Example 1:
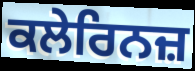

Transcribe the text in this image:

ਕਲੇਰਿਨਜ਼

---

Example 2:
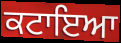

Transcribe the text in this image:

ਕਟਾਇਆ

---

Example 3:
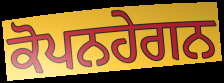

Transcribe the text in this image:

ਕੋਪਨਹੇਗਨ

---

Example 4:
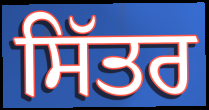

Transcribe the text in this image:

ਸਿੱਤਰ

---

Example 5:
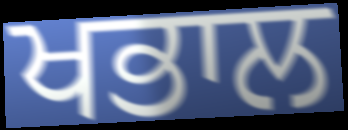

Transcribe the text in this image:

ਖਭਾਲ